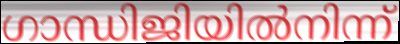
ഗാന്ധിജിയിൽനിന്ന്